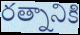
రత్నానికి